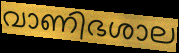
വാണിഭശാല